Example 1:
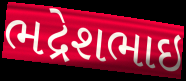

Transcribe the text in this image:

ભદ્રેશભાઇ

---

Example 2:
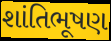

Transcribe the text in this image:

શાંતિભૂષણ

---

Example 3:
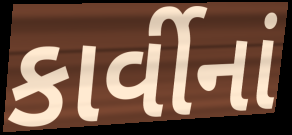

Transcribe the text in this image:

કાર્વીનાં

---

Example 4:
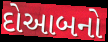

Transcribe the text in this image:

દોઆબનો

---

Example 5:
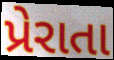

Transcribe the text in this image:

પ્રેરાતા